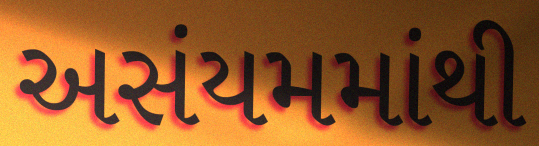
અસંયમમાંથી